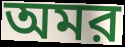
অমর